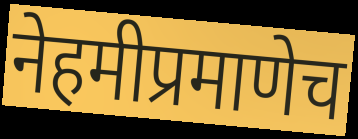
नेहमीप्रमाणेच